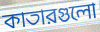
কাতারগুলো